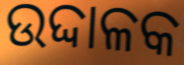
ଉଦ୍ଦାଳକ